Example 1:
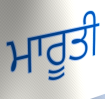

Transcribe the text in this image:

ਮਾਰੂਤੀ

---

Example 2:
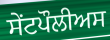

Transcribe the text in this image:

ਸੇਂਟਪੌਲੀਅਸ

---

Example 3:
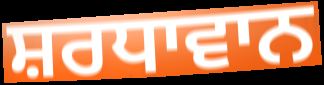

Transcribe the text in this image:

ਸ਼ਰਧਾਵਾਨ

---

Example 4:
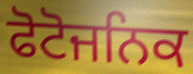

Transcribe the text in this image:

ਫੋਟੋਜਨਿਕ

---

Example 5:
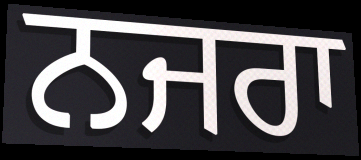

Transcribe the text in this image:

ਨਜਰਾ